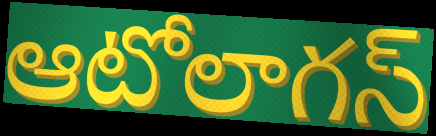
ఆటోలాగస్